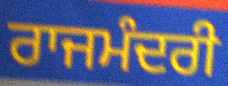
ਰਾਜਮੰਦਰੀ